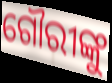
ଗୌରୀଙ୍କୁ